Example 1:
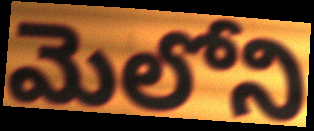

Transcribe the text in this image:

మెలోని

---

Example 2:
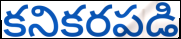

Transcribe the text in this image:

కనికరపడి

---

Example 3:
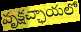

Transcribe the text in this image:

వృక్షచ్ఛాయలో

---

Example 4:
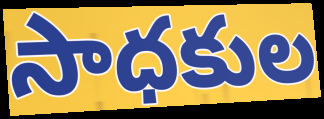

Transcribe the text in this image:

సాధకుల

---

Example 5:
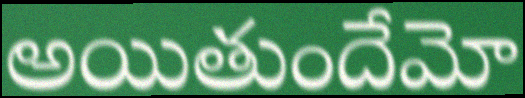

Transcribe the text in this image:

అయితుందేమో